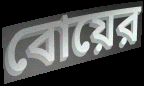
বোয়ের